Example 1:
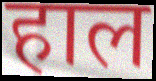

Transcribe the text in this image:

हाल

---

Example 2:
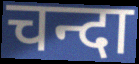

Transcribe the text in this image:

चन्दा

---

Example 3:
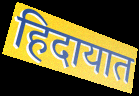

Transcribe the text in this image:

हिदायात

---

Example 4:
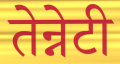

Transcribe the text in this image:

तेन्नेटी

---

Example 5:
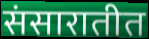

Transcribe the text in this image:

संसारातीत